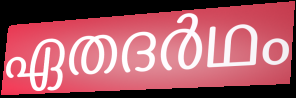
ഏതദർഥം